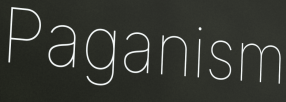
Paganism